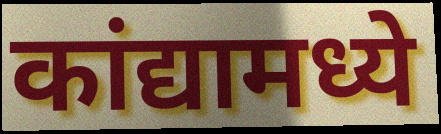
कांद्यामध्ये